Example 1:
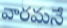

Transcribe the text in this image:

వారమనే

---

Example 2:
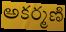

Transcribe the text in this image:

అకర్మణి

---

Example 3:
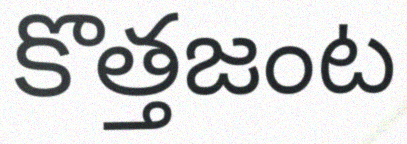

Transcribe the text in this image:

కొత్తజంట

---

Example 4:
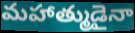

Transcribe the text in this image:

మహాత్ముడైనా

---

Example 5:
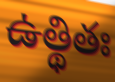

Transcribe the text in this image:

ఉత్థితః